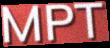
MPT